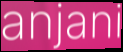
anjani